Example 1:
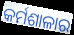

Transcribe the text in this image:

କର୍ମଶାଳାର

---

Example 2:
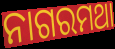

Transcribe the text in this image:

ନାଗରମଥା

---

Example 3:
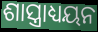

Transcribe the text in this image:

ଶାସ୍ତ୍ରାଧ୍ୟୟନ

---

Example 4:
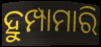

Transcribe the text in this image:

ହୁମ୍ପାମାରି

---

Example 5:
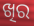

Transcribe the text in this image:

ଖିର